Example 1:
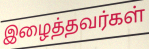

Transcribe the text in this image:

இழைத்தவர்கள்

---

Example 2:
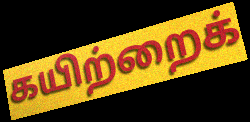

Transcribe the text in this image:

கயிற்றைக்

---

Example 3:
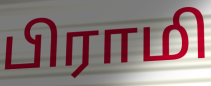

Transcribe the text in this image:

பிராமி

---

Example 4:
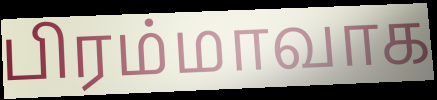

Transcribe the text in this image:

பிரம்மாவாக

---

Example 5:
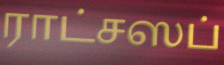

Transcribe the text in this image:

ராட்சஸப்